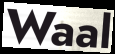
Waal